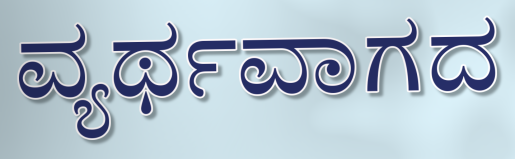
ವ್ಯರ್ಥವಾಗದ